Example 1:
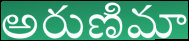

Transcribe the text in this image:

అరుణిమా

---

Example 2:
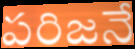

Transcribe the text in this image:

పరిజనే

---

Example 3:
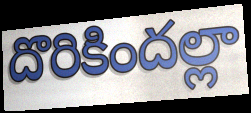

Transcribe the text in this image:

దొరికిందల్లా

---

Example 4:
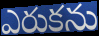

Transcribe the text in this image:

ఎరుకను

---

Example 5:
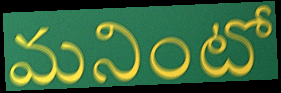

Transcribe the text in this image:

మనింటో